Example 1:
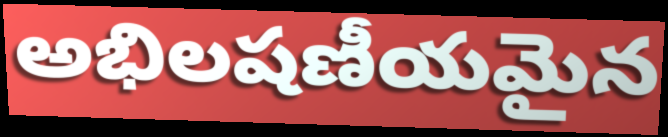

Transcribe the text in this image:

అభిలషణీయమైన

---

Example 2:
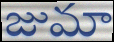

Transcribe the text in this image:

జుమా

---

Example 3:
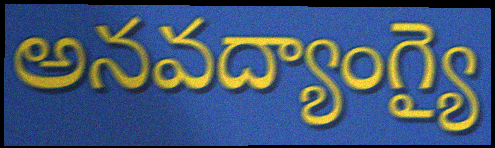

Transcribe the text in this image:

అనవద్యాంగ్యై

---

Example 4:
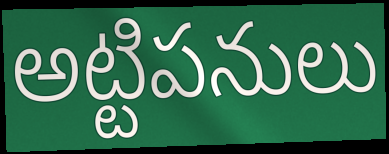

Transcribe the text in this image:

అట్టిపనులు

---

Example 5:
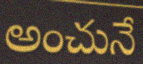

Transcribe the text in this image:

అంచునే